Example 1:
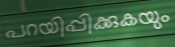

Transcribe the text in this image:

പറയിപ്പിക്കുകയും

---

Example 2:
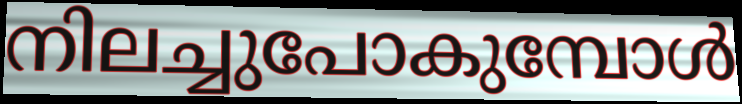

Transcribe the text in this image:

നിലച്ചുപോകുമ്പോൾ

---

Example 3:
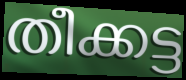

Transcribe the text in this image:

തീക്കട്ട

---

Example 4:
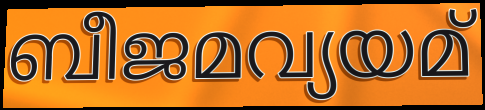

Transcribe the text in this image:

ബീജമവ്യയമ്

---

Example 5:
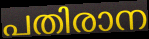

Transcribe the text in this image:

പതിരാന